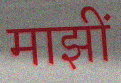
माझीं